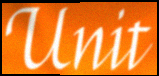
Unit